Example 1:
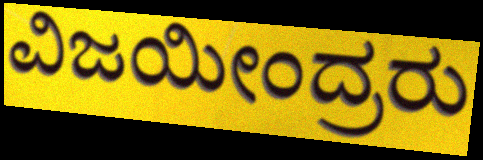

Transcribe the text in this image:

ವಿಜಯೀಂದ್ರರು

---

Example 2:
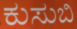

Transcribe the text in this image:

ಕುಸುಬಿ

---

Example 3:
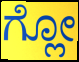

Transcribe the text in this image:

ಗ್ಲೋ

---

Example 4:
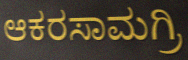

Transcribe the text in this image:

ಆಕರಸಾಮಗ್ರಿ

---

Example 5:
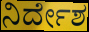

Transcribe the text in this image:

ನಿರ್ದೇಶ